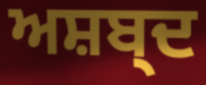
ਅਸ਼ਬ੍ਦ